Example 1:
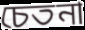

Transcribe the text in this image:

চেতনা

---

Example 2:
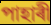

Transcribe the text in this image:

পাহাৰী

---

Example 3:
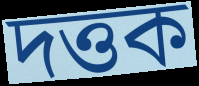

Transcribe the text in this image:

দত্তক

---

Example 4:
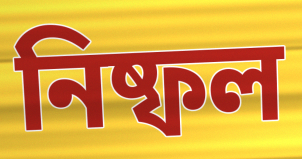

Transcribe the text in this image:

নিষ্ফল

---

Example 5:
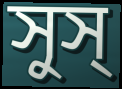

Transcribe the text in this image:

সুস্